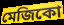
মেজিকো